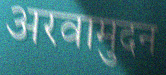
अरवामुदन